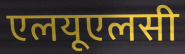
एलयूएलसी